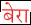
बेरा